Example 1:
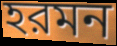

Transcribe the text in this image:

হরমন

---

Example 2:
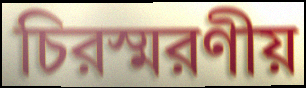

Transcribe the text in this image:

চিরস্মরণীয়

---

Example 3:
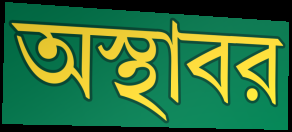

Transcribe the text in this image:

অস্থাবর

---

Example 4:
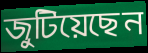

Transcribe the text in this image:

জুটিয়েছেন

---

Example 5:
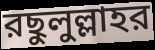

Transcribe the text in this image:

রছুলুল্লাহর